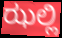
ಝಲ್ಲಿ